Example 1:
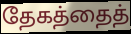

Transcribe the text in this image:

தேகத்தைத்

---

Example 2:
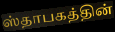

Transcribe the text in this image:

ஸ்தாபகத்தின்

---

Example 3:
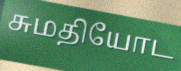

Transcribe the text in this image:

சுமதியோட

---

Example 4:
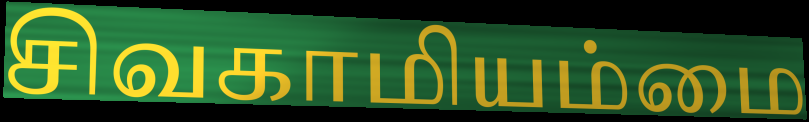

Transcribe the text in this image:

சிவகாமியம்மை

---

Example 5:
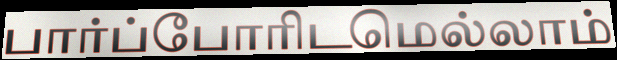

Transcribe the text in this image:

பார்ப்போரிடமெல்லாம்